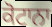
ਕੋਟਾਨਾ